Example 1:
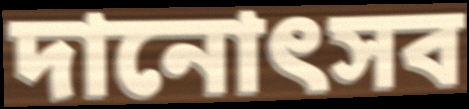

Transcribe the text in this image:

দানোৎসব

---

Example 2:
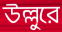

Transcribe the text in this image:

উল্লুরে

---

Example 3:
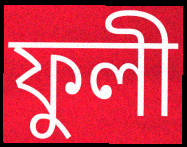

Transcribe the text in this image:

ফুলী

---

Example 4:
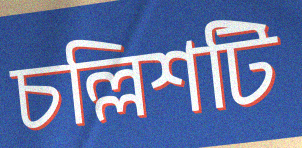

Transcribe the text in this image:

চল্লিশটি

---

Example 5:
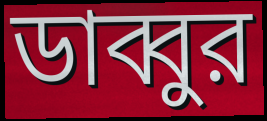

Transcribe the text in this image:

ডাব্বুর